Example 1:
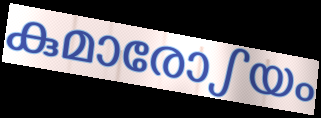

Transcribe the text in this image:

കുമാരോഽയം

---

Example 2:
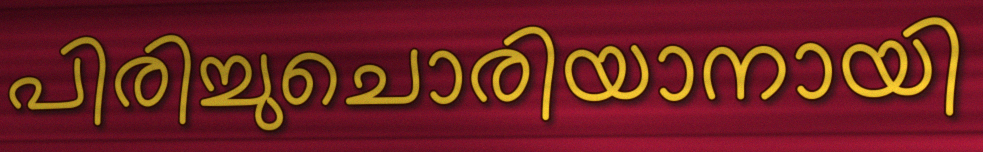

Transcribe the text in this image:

പിരിച്ചുചൊരിയാനായി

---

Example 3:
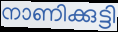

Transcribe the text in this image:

നാണിക്കുട്ടി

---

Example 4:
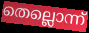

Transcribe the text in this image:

തെല്ലൊന്ന്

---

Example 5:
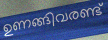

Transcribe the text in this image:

ഉണങ്ങിവരണ്ട്